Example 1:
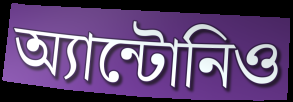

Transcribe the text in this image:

অ্যান্টোনিও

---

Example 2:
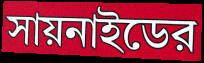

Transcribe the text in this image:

সায়নাইডের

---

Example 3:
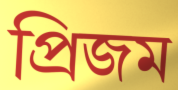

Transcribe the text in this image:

প্রিজম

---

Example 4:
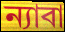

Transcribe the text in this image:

ন্যাবা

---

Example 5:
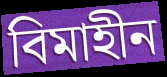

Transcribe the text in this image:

বিমাহীন